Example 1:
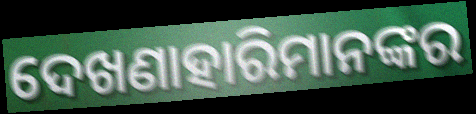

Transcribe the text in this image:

ଦେଖଣାହାରିମାନଙ୍କର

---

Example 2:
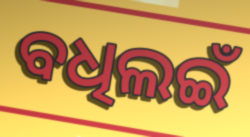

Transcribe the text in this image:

ବଧିଲଇଁ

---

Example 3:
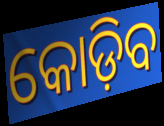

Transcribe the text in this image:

କୋଡ଼ିବ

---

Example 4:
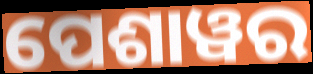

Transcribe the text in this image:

ପେଶାୱର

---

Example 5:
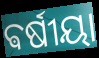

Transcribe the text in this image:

ଵର୍ଷୀୟା